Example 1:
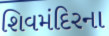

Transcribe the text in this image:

શિવમંદિરના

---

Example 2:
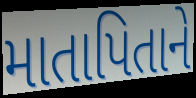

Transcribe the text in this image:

માતાપિતાને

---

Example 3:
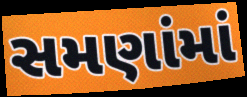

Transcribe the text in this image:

સમણાંમાં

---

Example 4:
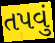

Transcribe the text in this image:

તપવું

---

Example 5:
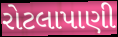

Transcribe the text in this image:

રોટલાપાણી